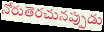
నోరుతెరచునప్పుడు